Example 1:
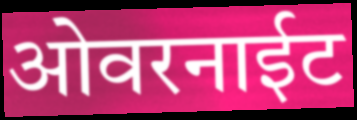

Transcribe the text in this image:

ओवरनाईट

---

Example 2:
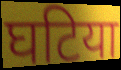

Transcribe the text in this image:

घटिया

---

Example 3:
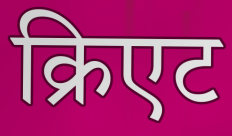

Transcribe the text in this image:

क्रिएट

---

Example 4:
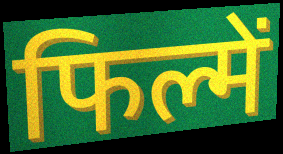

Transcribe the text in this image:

फिल्में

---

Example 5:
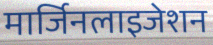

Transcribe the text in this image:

मार्जिनलाइजेशन